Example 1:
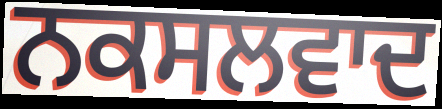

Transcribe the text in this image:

ਨਕਸਲਵਾਦ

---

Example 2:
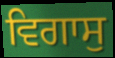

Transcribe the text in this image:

ਵਿਗਾਸੁ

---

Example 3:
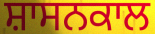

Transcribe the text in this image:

ਸ਼ਾਸਨਕਾਲ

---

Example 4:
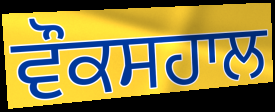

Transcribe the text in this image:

ਵੌਕਸਹਾਲ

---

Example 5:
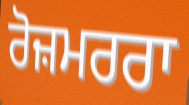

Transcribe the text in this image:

ਰੋਜ਼ਮਰਰਾ